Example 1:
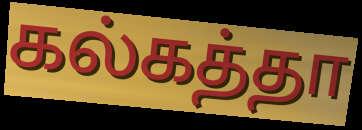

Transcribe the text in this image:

கல்கத்தா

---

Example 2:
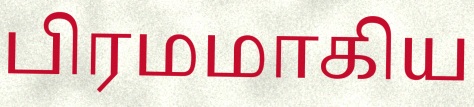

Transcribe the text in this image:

பிரமமாகிய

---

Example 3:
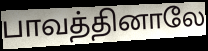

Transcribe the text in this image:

பாவத்தினாலே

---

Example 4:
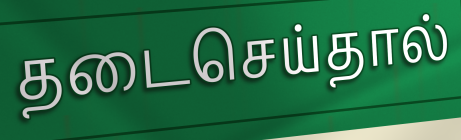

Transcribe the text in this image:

தடைசெய்தால்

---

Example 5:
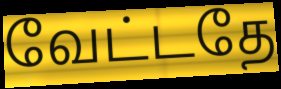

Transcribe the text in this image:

வேட்டதே